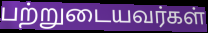
பற்றுடையவர்கள்